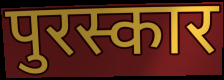
पुरस्कार